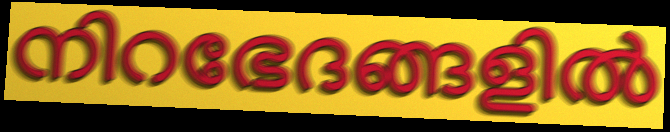
നിറഭേദങ്ങളിൽ